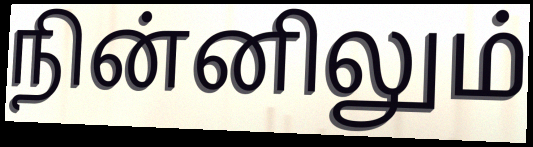
நின்னிலும்